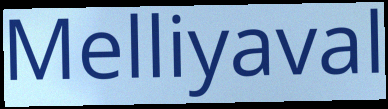
Melliyaval